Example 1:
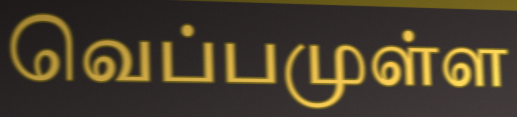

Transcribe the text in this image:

வெப்பமுள்ள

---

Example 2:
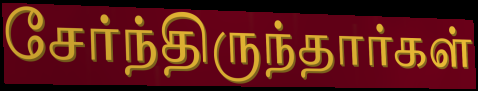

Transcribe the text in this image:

சேர்ந்திருந்தார்கள்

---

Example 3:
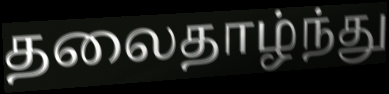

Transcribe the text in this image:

தலைதாழ்ந்து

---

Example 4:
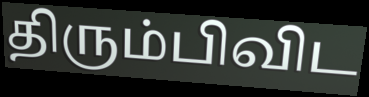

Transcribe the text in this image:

திரும்பிவிட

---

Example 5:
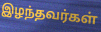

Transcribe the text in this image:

இழந்தவர்கள்